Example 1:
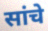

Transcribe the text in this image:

सांचे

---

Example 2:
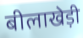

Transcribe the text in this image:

बीलाखेड़ी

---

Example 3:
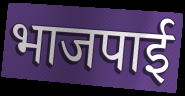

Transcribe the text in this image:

भाजपाई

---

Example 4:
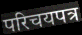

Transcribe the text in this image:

परिचयपत्र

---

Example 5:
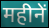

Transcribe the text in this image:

महीनें